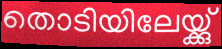
തൊടിയിലേയ്ക്കു്